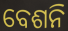
ବେଶନି